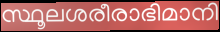
സ്ഥൂലശരീരാഭിമാനി